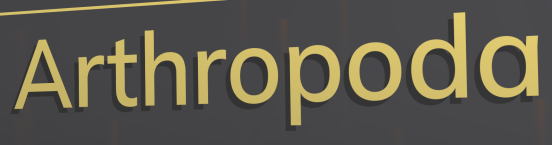
Arthropoda